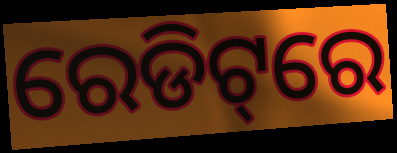
ରେଡିଟ୍‌ରେ